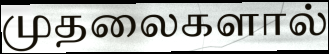
முதலைகளால்